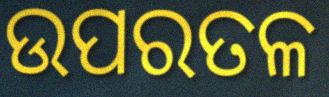
ଉପରତଳ